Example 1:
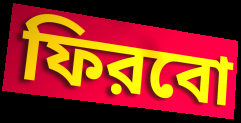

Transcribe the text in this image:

ফিরবো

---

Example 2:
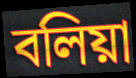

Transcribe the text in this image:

বলিয়া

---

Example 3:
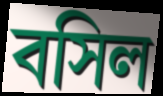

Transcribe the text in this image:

বসিল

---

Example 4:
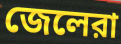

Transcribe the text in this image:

জেলেরা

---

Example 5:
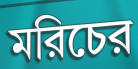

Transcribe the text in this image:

মরিচের